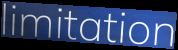
limitation